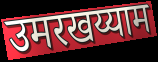
उमरखय्याम